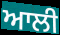
ਆਲੀ